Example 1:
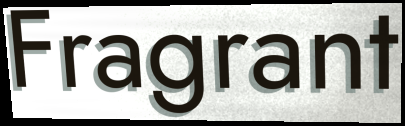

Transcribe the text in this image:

Fragrant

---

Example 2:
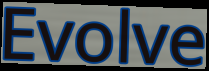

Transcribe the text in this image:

Evolve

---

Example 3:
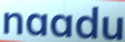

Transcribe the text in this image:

naadu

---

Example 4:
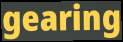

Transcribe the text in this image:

gearing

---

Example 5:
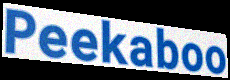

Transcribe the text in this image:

Peekaboo